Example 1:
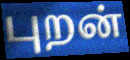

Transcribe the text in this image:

புறன்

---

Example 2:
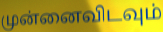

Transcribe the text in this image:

முன்னைவிடவும்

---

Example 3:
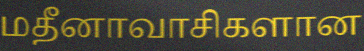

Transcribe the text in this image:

மதீனாவாசிகளான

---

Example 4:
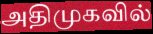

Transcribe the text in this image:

அதிமுகவில்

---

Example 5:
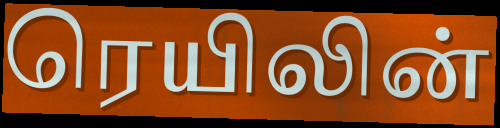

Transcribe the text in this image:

ரெயிலின்